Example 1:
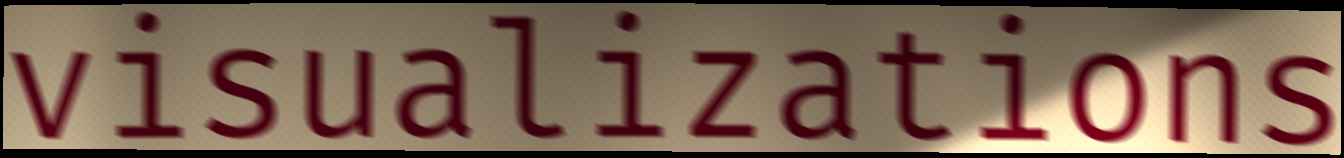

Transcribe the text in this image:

visualizations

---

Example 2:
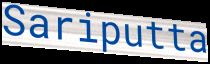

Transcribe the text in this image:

Sariputta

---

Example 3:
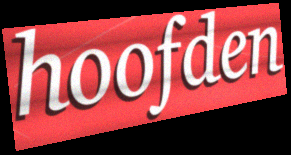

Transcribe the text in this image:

hoofden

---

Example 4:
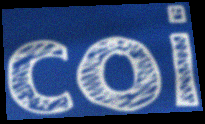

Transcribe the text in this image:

coi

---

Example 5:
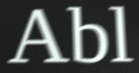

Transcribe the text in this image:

Abl